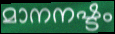
മാനനഷ്ടം